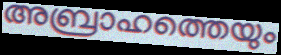
അബ്രാഹത്തെയും